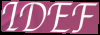
IDEF